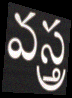
వస్త్ర